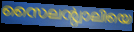
സൈലന്റ്വാലിയെ